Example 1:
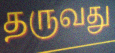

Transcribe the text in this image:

தருவது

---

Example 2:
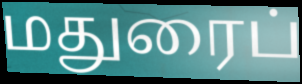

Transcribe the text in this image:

மதுரைப்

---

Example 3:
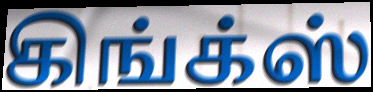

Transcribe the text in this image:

கிங்க்ஸ்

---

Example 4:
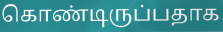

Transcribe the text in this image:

கொண்டிருப்பதாக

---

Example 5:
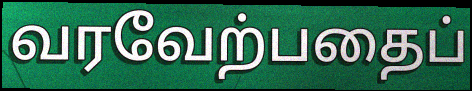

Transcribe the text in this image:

வரவேற்பதைப்